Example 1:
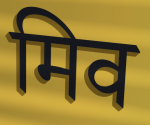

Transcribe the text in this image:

मिव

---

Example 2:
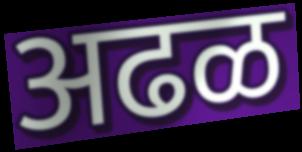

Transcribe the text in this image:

अढळ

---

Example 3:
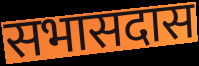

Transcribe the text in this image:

सभासदास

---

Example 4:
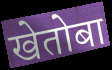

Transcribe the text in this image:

खेतोबा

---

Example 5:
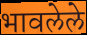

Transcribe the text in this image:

भावलेले